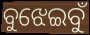
ବୁଝେଇବୁଁ